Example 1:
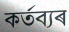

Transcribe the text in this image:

কৰ্তব্যৰ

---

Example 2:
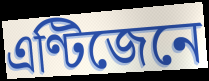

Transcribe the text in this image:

এণ্টিজেনে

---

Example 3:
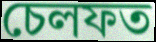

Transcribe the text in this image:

চেলফত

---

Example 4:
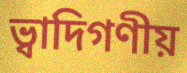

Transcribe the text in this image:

ভ্বাদিগণীয়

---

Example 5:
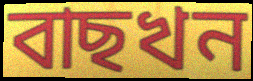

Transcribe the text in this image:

বাছখন